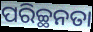
ପରିଚ୍ଛନତା